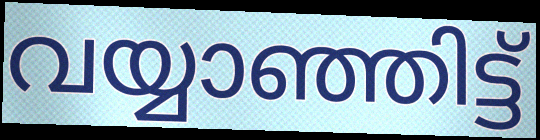
വയ്യാഞ്ഞിട്ട്